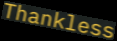
Thankless